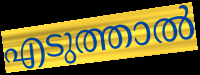
എടുത്താൽ